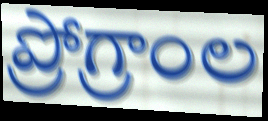
ప్రోగ్రాంల